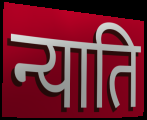
न्याति